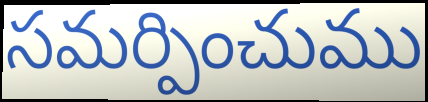
సమర్పించుము